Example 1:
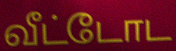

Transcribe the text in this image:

வீட்டோட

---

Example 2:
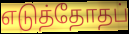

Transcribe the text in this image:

எடுத்தோதப்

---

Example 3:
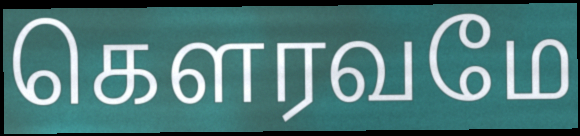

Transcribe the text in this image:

கௌரவமே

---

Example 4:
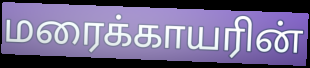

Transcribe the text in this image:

மரைக்காயரின்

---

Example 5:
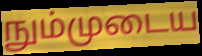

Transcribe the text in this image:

நும்முடைய